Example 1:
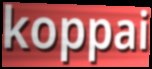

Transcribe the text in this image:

koppai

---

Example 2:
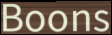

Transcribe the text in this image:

Boons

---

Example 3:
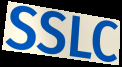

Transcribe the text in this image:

SSLC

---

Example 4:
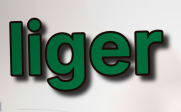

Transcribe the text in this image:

liger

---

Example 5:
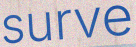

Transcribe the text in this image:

surve